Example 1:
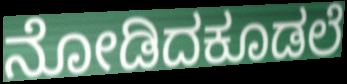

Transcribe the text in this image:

ನೋಡಿದಕೂಡಲೆ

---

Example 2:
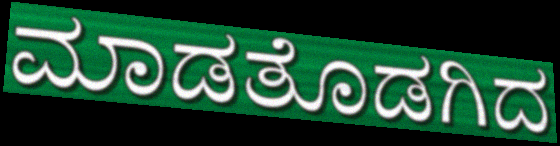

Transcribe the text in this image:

ಮಾಡತೊಡಗಿದ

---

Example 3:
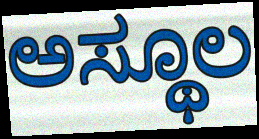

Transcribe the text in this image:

ಅಸ್ಥೂಲ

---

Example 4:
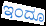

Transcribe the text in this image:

ಇಂದೂ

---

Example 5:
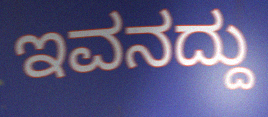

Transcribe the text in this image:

ಇವನದ್ದು